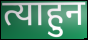
त्याहुन